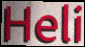
Heli